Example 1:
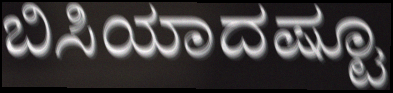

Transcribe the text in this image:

ಬಿಸಿಯಾದಷ್ಟೂ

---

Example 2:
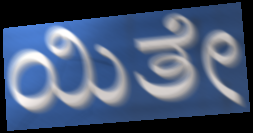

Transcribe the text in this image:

ಯಿತೇ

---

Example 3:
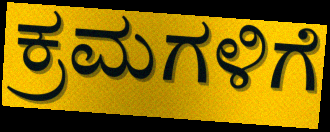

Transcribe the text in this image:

ಕ್ರಮಗಳಿಗೆ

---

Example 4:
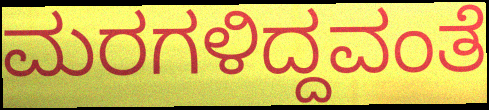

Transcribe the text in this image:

ಮರಗಳಿದ್ದವಂತೆ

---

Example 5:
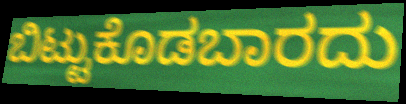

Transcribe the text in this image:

ಬಿಟ್ಟುಕೊಡಬಾರದು